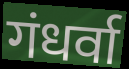
गंधर्वा